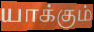
யாக்கும்